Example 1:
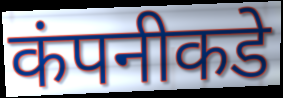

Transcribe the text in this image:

कंपनीकडे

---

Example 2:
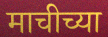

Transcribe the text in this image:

माचीच्या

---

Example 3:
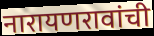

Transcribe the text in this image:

नारायणरावांची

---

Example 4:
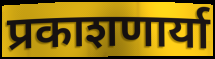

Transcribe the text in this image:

प्रकाशणार्या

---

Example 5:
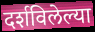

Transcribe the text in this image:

दर्शविलेल्या